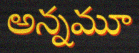
అన్నమూ